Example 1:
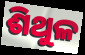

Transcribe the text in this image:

ଶିଥୁଳ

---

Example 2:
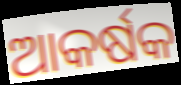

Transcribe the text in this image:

ଆକର୍ଷକ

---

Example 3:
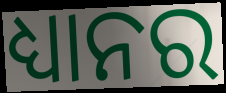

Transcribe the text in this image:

ଧ୍ୟାନର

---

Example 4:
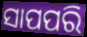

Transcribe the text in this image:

ସାପପରି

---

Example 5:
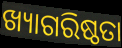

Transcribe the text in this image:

ଖ୍ୟାଗରିଷ୍ଠତା